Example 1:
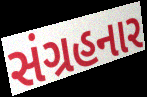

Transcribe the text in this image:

સંગ્રહનાર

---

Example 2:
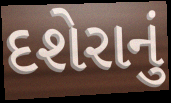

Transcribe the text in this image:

દશેરાનું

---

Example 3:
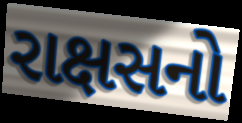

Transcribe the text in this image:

રાક્ષસનો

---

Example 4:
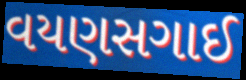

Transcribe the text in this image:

વયણસગાઈ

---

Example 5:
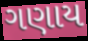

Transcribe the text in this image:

ગણાય